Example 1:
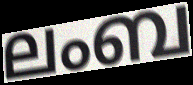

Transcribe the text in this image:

ലംബ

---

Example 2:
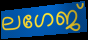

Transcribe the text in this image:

ലഗേജ്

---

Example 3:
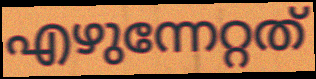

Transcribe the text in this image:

എഴുന്നേറ്റത്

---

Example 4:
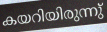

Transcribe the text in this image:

കയറിയിരുന്നു്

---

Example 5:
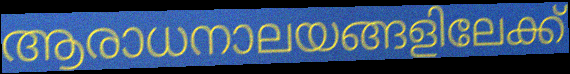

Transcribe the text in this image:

ആരാധനാലയങ്ങളിലേക്ക്